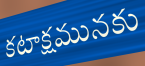
కటాక్షమునకు